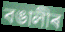
বঙালীৰ